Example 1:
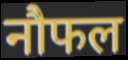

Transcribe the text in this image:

नौफल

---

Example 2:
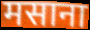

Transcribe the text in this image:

मसाना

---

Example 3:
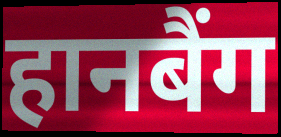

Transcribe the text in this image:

हानबैंग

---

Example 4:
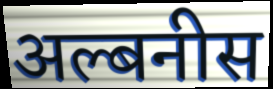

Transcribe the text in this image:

अल्बनीस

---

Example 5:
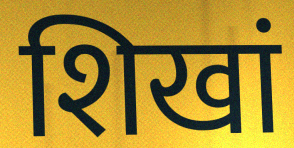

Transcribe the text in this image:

शिखां